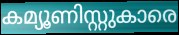
കമ്യൂണിസ്റ്റുകാരെ